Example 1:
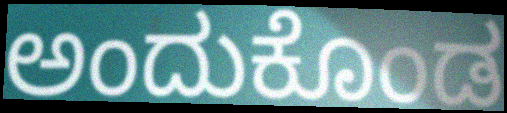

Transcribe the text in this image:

ಅಂದುಕೊಂಡ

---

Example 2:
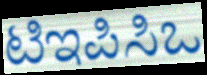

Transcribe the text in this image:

ಟಿಇಪಿಸಿಒ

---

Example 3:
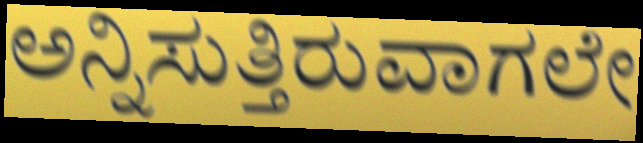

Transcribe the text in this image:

ಅನ್ನಿಸುತ್ತಿರುವಾಗಲೇ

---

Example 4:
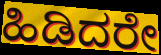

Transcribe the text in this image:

ಹಿಡಿದರೇ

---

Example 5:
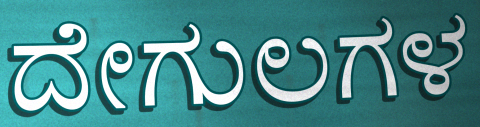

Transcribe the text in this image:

ದೇಗುಲಗಳ